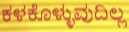
ಕಳಕೊಳ್ಳುವುದಿಲ್ಲ